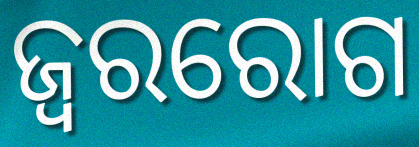
ଜ୍ୱରରୋଗ